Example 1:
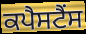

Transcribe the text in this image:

ਕਪੈਸਟੈਂਸ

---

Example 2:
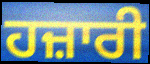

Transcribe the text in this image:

ਹਜ਼ਾਰੀ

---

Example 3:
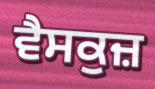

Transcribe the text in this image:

ਵੈਸਕੁਜ਼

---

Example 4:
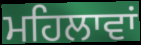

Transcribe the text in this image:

ਮਹਿਲਾਵਾਂ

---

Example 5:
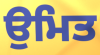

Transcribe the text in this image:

ਉਮਿਤ